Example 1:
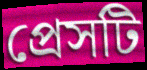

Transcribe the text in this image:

প্রেসটি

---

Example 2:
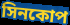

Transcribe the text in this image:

সিনকোপ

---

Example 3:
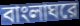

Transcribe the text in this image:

বাংলাঘরে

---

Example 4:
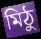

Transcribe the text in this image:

মিঠু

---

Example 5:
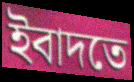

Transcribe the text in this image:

ইবাদতে